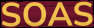
SOAS